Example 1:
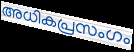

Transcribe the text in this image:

അധികപ്രസംഗം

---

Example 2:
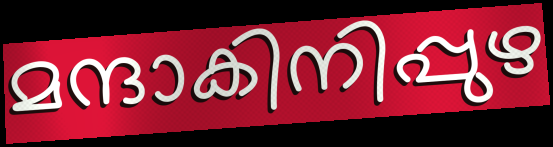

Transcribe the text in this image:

മന്ദാകിനിപ്പുഴ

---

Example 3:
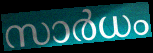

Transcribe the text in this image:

സാർധം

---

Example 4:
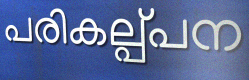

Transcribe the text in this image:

പരികല്പ്പന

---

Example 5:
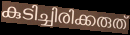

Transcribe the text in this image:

കുടിച്ചിരിക്കരുത്